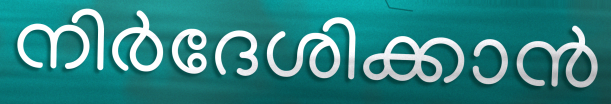
നിർദേശിക്കാൻ